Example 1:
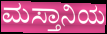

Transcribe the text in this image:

ಮಸ್ತಾನಿಯ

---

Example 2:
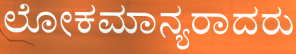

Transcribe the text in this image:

ಲೋಕಮಾನ್ಯರಾದರು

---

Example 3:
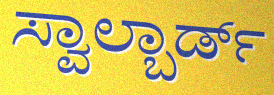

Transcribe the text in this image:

ಸ್ವಾಲ್ಬಾರ್ಡ್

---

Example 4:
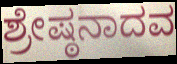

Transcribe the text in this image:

ಶ್ರೇಷ್ಠನಾದವ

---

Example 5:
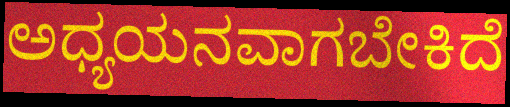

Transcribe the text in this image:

ಅಧ್ಯಯನವಾಗಬೇಕಿದೆ